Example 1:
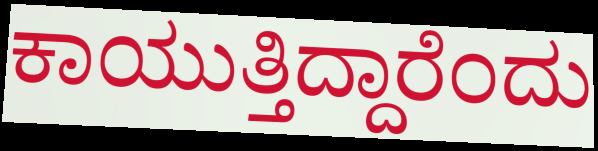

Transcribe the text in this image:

ಕಾಯುತ್ತಿದ್ದಾರೆಂದು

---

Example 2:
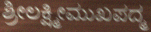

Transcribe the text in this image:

ಶ್ರೀಲಕ್ಷ್ಮೀಮುಖಪದ್ಮ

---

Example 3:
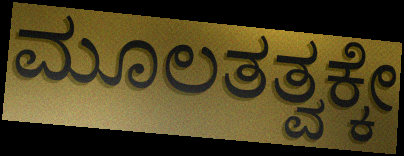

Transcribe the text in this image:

ಮೂಲತತ್ವಕ್ಕೇ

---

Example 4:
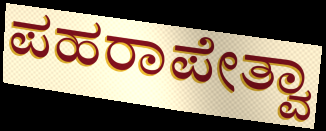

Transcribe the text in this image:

ಪಹರಾಪೇತ್ವಾ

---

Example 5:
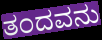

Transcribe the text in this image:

ತಂದವನು